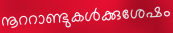
നൂററാണ്ടുകൾക്കുശേഷം